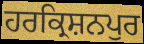
ਹਰਕ੍ਰਿਸ਼ਨਪੁਰ